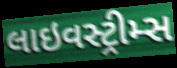
લાઇવસ્ટ્રીમ્સ